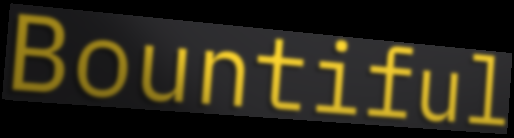
Bountiful